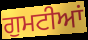
ਗੁਮਟੀਆਂ